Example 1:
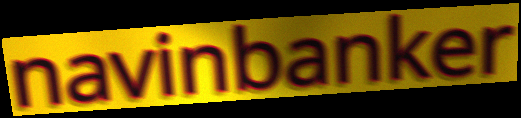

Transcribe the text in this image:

navinbanker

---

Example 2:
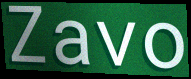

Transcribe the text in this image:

Zavo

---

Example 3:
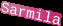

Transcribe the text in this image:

Sarmila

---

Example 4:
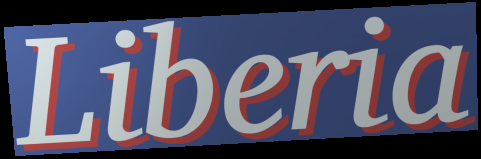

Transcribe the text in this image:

Liberia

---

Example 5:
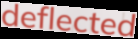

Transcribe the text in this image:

deflected